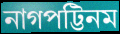
নাগপট্টিনম